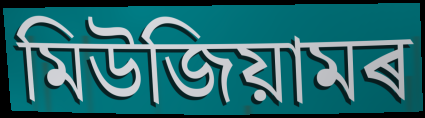
মিউজিয়ামৰ